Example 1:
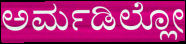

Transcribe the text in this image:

ಅರ್ಮಡಿಲ್ಲೋ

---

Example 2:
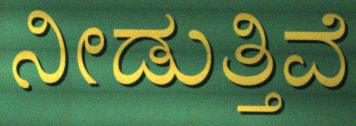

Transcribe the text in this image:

ನೀಡುತ್ತಿವೆ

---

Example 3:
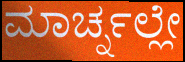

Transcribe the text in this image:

ಮಾರ್ಚ್ನಲ್ಲೇ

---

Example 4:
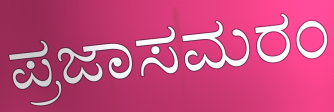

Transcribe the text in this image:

ಪ್ರಜಾಸಮರಂ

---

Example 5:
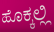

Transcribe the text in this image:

ಹೊಕ್ಕಲ್ಲಿ